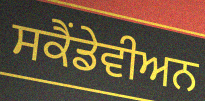
ਸਕੈਂਡੇਵੀਅਨ